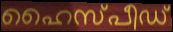
ഹൈസ്പീഡ്